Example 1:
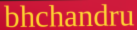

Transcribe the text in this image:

bhchandru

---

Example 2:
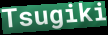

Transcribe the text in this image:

Tsugiki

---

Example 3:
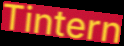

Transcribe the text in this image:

Tintern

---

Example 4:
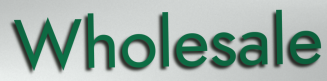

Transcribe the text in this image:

Wholesale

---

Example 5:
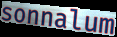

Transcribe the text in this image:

sonnalum